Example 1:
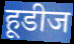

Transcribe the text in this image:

हूडीज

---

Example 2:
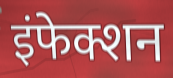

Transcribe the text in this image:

इंफेक्शन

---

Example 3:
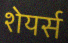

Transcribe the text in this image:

शेयर्स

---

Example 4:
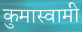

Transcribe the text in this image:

कुमास्वामी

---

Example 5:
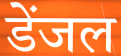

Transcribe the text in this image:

डेंजल